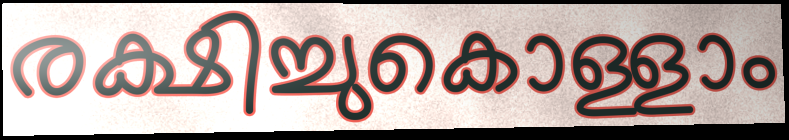
രക്ഷിച്ചുകൊള്ളാം